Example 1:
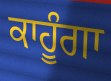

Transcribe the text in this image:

ਕਾਹੂੰਗਾ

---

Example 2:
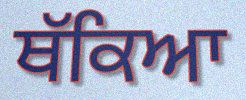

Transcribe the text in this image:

ਥੱਕਿਆ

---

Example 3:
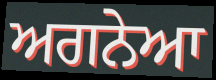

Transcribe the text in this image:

ਅਗਨੇਆ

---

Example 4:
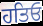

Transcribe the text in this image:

ਹਤਿਓ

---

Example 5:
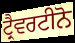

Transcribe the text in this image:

ਟ੍ਰੈਵਰਟੀਨੋ